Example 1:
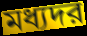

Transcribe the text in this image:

মধ্যদর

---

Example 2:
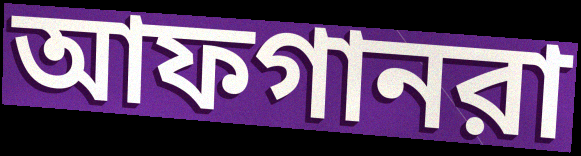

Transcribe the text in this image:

আফগানরা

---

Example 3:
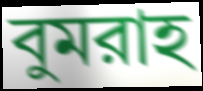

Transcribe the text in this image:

বুমরাহ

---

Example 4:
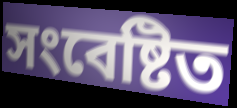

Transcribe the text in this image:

সংবেষ্টিত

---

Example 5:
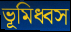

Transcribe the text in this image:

ভূমিধ্বস